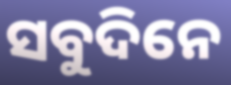
ସବୁଦିନେ